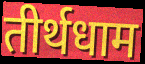
तीर्थधाम